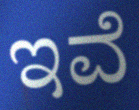
ಇವೆ